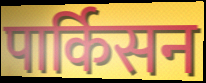
पार्किसन